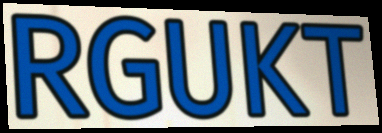
RGUKT